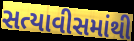
સત્યાવીસમાંથી